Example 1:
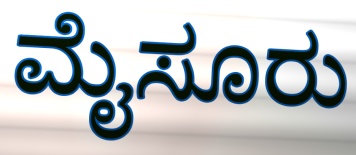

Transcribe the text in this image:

ಮೈಸೂರು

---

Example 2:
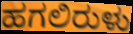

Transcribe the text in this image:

ಹಗಲಿರುಳು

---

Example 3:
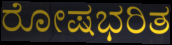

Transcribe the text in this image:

ರೋಷಭರಿತ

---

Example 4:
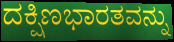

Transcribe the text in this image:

ದಕ್ಷಿಣಭಾರತವನ್ನು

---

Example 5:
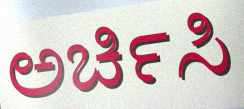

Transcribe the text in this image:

ಅರ್ಚಿಸಿ